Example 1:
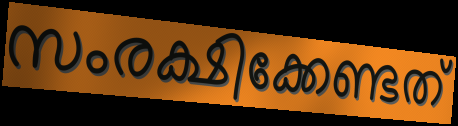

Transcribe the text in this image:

സംരക്ഷിക്കേണ്ടത്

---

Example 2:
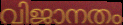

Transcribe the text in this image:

വിജാനതം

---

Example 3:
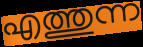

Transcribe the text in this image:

എത്തുന്ന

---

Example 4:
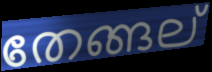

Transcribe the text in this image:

തേങ്ങല്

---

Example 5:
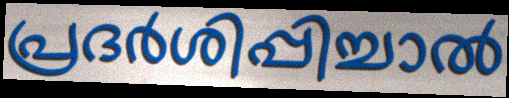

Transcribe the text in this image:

പ്രദർശിപ്പിച്ചാൽ